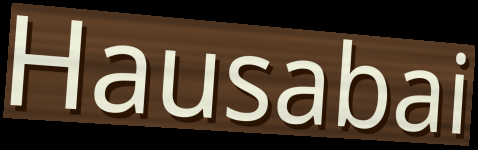
Hausabai